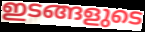
ഇടങ്ങളുടെ